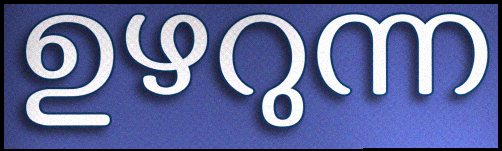
ഉഴറുന്ന